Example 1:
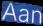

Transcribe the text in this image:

Aan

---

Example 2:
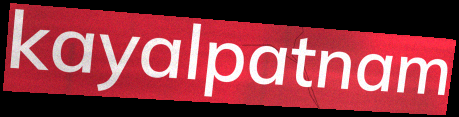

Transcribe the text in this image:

kayalpatnam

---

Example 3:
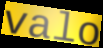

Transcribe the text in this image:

valo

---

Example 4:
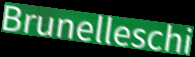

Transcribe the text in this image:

Brunelleschi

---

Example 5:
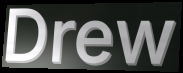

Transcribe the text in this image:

Drew